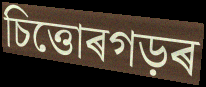
চিত্তোৰগড়ৰ